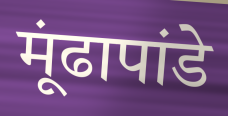
मूंढापांडे